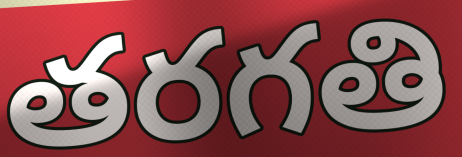
తరగతి